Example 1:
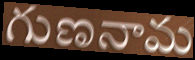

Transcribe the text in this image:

గుణనామ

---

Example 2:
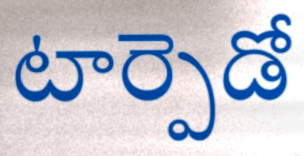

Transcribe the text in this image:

టార్పెడో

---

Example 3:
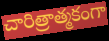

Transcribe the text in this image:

చారిత్రాత్మకంగా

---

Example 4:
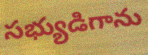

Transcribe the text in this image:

సభ్యుడిగాను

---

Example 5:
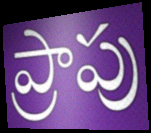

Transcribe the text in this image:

ప్రాపు